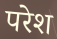
परेश